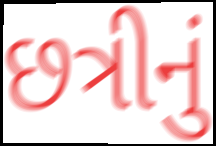
છત્રીનું